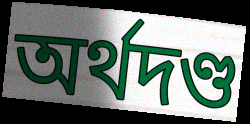
অর্থদণ্ড